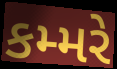
કમ્મરે